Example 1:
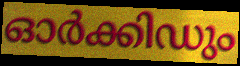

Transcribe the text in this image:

ഓർക്കിഡും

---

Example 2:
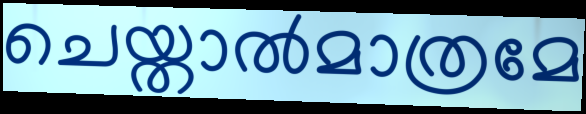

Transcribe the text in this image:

ചെയ്താൽമാത്രമേ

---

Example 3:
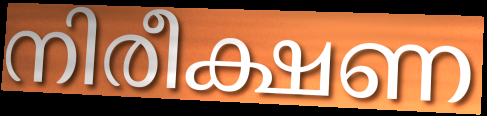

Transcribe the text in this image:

നിരീക്ഷണ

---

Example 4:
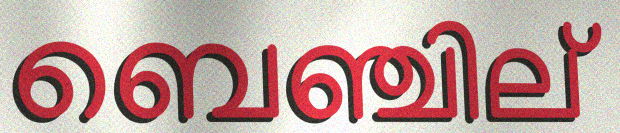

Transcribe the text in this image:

ബെഞ്ചില്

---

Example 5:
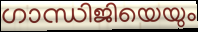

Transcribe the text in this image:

ഗാന്ധിജിയെയും